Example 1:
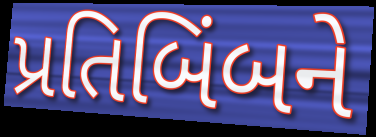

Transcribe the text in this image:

પ્રતિબિંબને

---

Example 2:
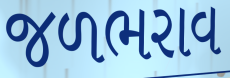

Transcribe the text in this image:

જળભરાવ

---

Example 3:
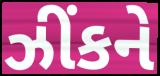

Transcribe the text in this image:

ઝીંકને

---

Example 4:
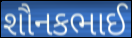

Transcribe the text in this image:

શૌનકભાઈ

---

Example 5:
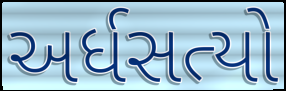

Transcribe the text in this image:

અર્ધસત્યો